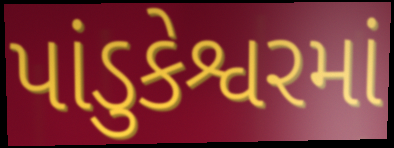
પાંડુકેશ્વરમાં